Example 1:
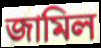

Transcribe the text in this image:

জামিল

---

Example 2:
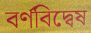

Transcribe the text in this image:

বর্ণবিদ্বেষ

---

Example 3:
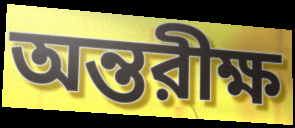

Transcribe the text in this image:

অন্তরীক্ষ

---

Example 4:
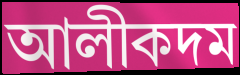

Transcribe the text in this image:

আলীকদম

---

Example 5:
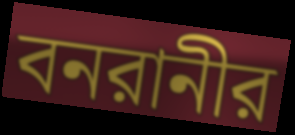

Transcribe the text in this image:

বনরানীর